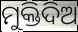
ମୁକ୍ତିଦିଅ